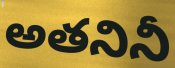
అతనినీ